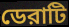
ডেরাটি